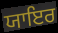
ਯਾਇਰ